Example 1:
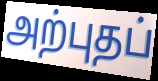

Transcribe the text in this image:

அற்புதப்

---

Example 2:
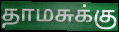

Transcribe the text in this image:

தாமசுக்கு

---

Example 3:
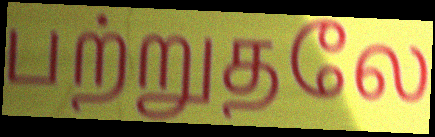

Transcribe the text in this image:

பற்றுதலே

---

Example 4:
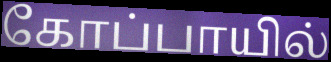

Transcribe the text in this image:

கோப்பாயில்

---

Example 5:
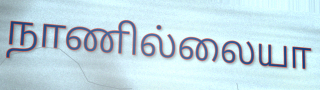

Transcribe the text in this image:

நாணில்லையா